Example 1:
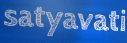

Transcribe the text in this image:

satyavati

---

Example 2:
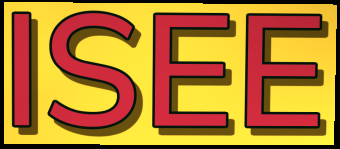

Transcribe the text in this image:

ISEE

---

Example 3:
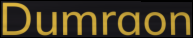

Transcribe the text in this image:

Dumraon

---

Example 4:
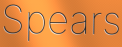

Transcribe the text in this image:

Spears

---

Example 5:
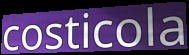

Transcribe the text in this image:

costicola